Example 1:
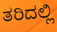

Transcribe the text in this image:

ತರಿದಲ್ಲಿ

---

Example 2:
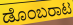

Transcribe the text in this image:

ಡೊಂಬರಾಟ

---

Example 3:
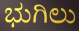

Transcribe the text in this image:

ಭುಗಿಲು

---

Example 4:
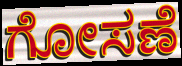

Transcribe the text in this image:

ಗೋಸಣೆ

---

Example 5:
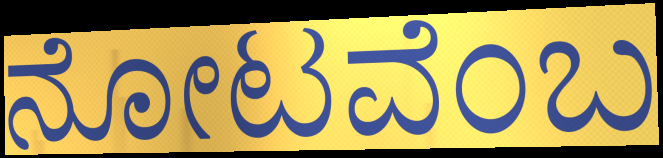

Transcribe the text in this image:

ನೋಟವೆಂಬ